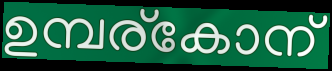
ഉമ്പര്കോന്